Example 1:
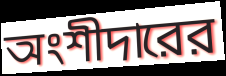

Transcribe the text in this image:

অংশীদারের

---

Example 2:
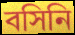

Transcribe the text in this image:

বসিনি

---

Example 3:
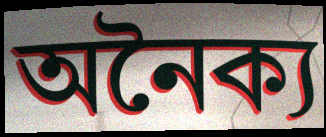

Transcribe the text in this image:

অনৈক্য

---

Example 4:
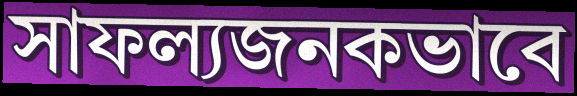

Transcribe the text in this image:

সাফল্যজনকভাবে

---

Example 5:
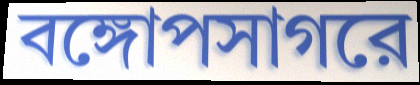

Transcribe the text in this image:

বঙ্গোপসাগরে